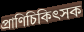
প্রাণিচিকিৎসক